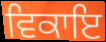
ਵਿਕਾਇ